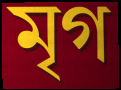
মৃগ